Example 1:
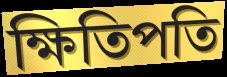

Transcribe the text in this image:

ক্ষিতিপতি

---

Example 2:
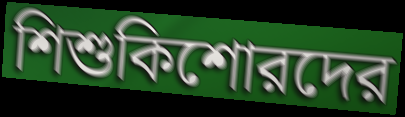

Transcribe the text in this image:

শিশুকিশোরদের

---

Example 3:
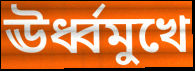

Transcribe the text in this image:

ঊর্ধ্বমুখে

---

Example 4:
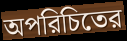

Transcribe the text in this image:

অপরিচিতের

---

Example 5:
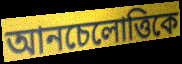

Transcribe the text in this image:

আনচেলোত্তিকে